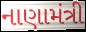
નાણામંત્રી